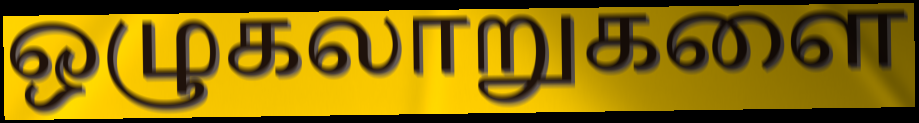
ஒழுகலாறுகளை